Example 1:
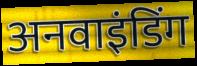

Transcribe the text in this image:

अनवाइंडिंग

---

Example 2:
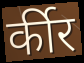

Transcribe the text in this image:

र्कीर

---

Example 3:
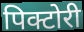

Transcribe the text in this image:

पिक्टोरी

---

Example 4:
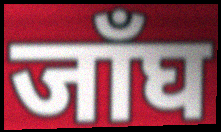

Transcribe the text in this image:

जाँघ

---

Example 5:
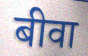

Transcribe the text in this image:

बीवा